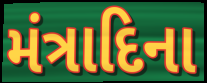
મંત્રાદિના